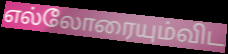
எல்லோரையும்விட